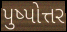
પુષ્પોત્તર